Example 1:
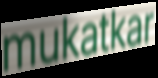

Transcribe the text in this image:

mukatkar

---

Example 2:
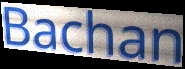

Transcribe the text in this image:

Bachan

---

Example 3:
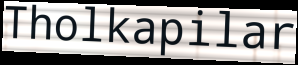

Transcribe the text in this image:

Tholkapilar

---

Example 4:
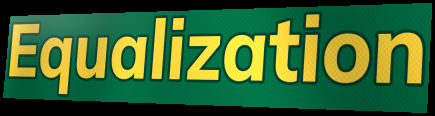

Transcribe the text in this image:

Equalization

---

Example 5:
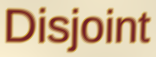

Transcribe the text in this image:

Disjoint